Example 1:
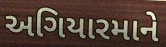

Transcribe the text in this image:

અગિયારમાને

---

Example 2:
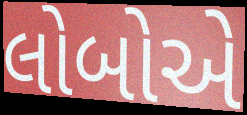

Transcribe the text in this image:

લોબોએ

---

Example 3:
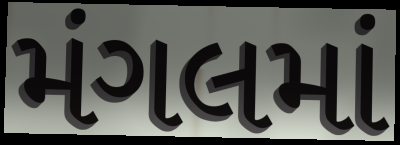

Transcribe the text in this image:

મંગલમાં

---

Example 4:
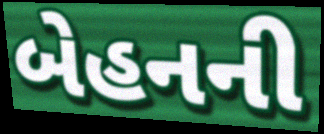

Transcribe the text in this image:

બેહનની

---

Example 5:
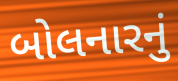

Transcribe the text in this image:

બોલનારનું